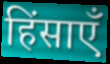
हिंसाएँ